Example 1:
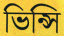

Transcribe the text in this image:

ভিন্সি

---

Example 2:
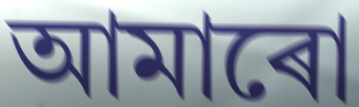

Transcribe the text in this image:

আমাৰো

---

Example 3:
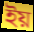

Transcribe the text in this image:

ইয়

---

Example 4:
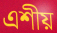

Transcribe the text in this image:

এশীয়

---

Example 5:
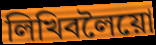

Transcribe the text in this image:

লিখিবলৈয়ো